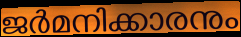
ജർമനിക്കാരനും